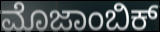
ಮೊಜಾಂಬಿಕ್